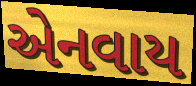
એનવાય